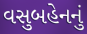
વસુબહેનનું